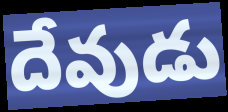
దేవుడు